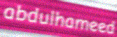
abdulhameed